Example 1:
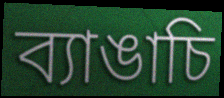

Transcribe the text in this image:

ব্যাঙাচি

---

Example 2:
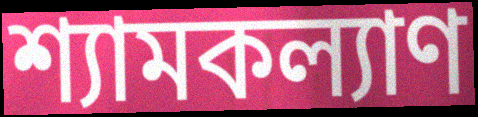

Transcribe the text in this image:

শ্যামকল্যাণ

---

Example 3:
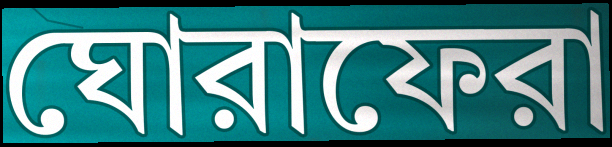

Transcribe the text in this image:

ঘোরাফেরা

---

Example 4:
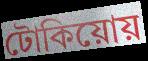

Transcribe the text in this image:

টোকিয়োয়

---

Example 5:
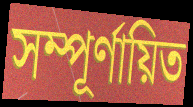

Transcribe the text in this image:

সম্পূর্ণায়িত